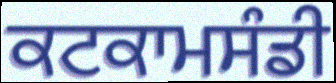
ਕਟਕਾਮਸੰਡੀ